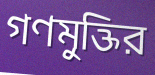
গণমুক্তির